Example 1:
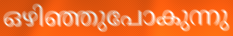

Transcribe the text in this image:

ഒഴിഞ്ഞുപോകുന്നു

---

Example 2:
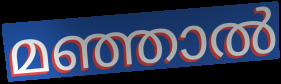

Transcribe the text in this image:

മഞ്ഞാൽ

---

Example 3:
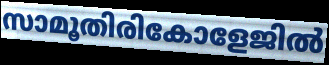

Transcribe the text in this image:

സാമൂതിരികോളേജിൽ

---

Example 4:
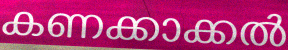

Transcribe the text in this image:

കണക്കാക്കൽ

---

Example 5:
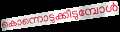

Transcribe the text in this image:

കൊന്നൊടുക്കീടുമ്പോൾ